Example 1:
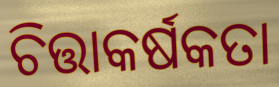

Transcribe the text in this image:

ଚିତ୍ତାକର୍ଷକତା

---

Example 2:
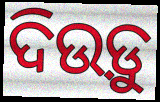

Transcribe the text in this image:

ଦିଉଡ଼ୁ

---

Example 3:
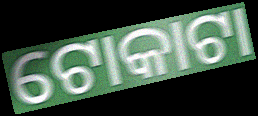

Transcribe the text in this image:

ଟୋକାଟା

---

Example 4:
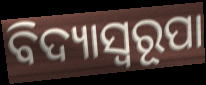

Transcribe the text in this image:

ବିଦ୍ୟାସ୍ୱରୂପା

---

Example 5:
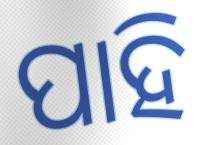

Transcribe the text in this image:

ପାହି